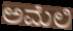
ಅಮೆಲಿ